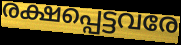
രക്ഷപ്പെട്ടവരേ